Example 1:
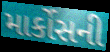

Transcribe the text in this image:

માર્કોસની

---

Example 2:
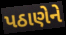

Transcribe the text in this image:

પઠાણેને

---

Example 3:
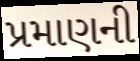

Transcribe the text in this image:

પ્રમાણની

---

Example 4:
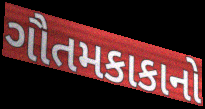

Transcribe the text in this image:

ગૌતમકાકાનો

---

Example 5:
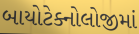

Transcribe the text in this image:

બાયોટેક્નોલોજીમાં